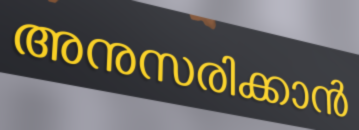
അനുസരിക്കാൻ